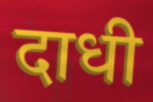
दाधी